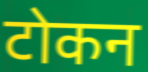
टोकन